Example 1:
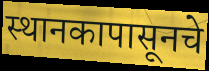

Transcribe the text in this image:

स्थानकापासूनचे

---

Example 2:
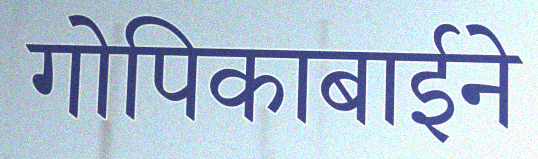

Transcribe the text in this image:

गोपिकाबाईने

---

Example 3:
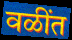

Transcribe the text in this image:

वळींत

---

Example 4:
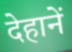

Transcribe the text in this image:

देहानें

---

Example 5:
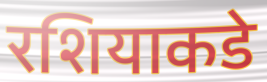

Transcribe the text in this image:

रशियाकडे